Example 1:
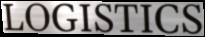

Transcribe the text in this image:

LOGISTICS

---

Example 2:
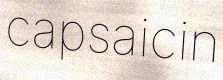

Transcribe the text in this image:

capsaicin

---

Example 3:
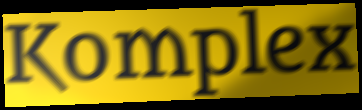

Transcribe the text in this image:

Komplex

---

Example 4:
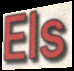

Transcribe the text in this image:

Els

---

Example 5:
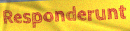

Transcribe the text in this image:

Responderunt